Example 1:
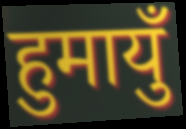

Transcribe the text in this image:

हुमायुँ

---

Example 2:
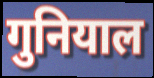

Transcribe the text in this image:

गुनियाल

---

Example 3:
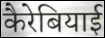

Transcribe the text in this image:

कैरेबियाई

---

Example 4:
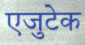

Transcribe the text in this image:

एजुटेक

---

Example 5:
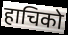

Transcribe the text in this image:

हाचिको